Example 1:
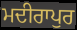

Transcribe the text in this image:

ਮਦੀਰਾਪੁਰ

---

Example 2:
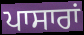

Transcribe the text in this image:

ਪਾਸਾਰਾਂ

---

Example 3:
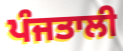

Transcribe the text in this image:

ਪੰਜਤਾਲੀ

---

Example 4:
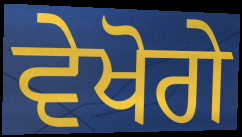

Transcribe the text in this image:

ਵੇਖੋਗੇ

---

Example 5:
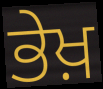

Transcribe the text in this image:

ਭੇਖ਼